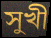
সুখী